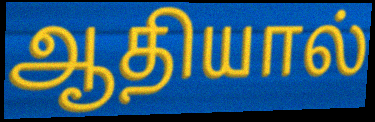
ஆதியால்